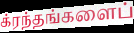
க்ரந்தங்களைப்